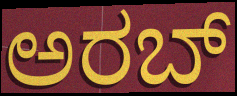
ಅರಬ್